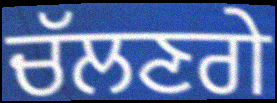
ਚੱਲਣਗੇ